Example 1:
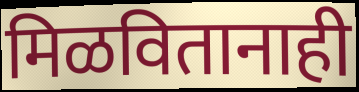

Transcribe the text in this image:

मिळवितानाही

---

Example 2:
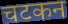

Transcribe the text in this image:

चटकन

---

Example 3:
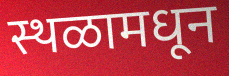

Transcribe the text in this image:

स्थळामधून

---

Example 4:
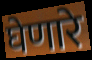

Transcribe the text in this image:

घेणारे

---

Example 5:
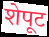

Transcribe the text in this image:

शेपूट